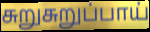
சுறுசுறுப்பாய்